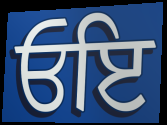
ਓਇ